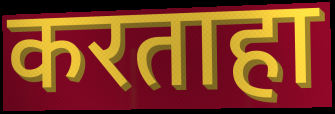
करताहा